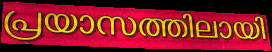
പ്രയാസത്തിലായി